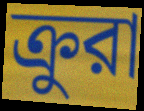
ক্রুরা